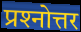
प्रश्‍नोत्तर